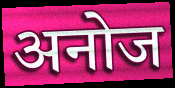
अनोज